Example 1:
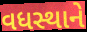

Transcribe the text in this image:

વધસ્થાને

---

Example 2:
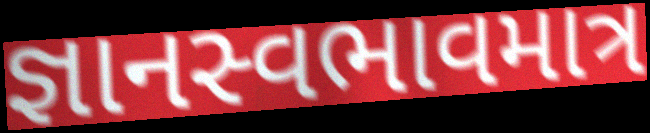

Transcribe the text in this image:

જ્ઞાનસ્વભાવમાત્ર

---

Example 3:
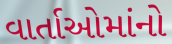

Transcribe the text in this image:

વાર્તાઓમાંનો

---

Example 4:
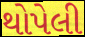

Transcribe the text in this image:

થોપેલી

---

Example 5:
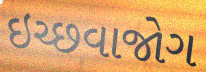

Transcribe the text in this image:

ઇચ્છવાજોગ